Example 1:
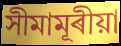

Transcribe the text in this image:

সীমামূৰীয়া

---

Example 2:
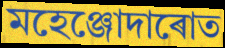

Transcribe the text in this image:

মহেঞ্জোদাৰোত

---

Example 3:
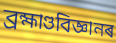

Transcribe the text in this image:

ব্ৰহ্মাণ্ডবিজ্ঞানৰ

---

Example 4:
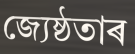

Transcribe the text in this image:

জ্যেষ্ঠতাৰ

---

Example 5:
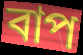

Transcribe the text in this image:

বাপ